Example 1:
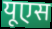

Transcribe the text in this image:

यूएस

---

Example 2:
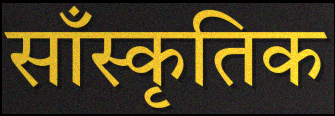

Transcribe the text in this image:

साँस्कृतिक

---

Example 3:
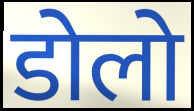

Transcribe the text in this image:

डोलो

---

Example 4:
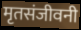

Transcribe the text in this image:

मृतसंजीवनी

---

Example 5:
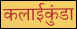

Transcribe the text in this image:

कलाईकुंडा